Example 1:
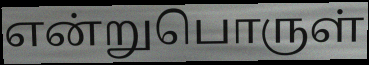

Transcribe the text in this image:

என்றுபொருள்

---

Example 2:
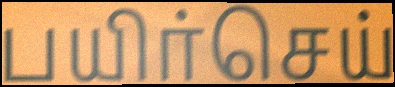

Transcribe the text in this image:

பயிர்செய்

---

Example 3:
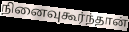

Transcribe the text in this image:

நினைவுகூர்ந்தான்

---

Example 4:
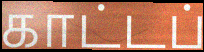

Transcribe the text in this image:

காட்டப்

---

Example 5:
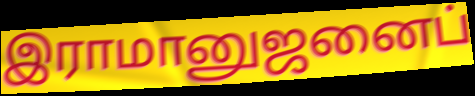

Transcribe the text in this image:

இராமானுஜனைப்